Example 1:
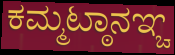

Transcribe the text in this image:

ಕಮ್ಮಟ್ಠಾನಞ್ಚ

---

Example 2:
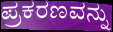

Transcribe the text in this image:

ಪ್ರಕರಣವನ್ನು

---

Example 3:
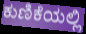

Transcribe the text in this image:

ಕುಣಿಕೆಯಲ್ಲಿ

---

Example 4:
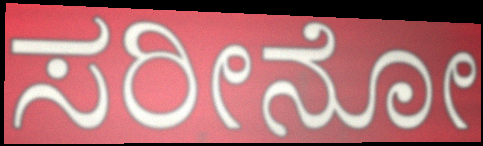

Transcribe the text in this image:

ಸರೀನೋ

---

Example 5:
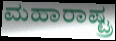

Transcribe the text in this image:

ಮಹಾರಾಷ್ಟ್ರ